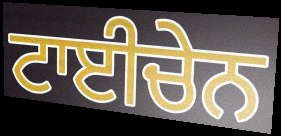
ਟਾਈਚੇਨ